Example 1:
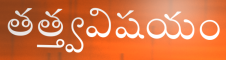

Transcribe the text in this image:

తత్త్వవిషయం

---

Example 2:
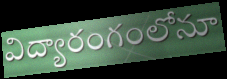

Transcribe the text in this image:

విద్యారంగంలోనూ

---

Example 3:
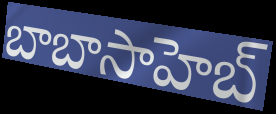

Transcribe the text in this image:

బాబాసాహెబ్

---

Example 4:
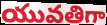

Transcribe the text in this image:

యువతిగా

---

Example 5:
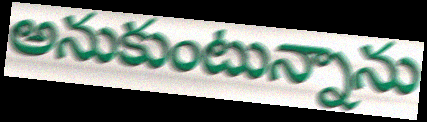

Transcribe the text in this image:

అనుకుంటున్నాను